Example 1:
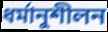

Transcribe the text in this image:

ধৰ্মানুশীলন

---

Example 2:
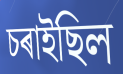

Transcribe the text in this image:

চৰাইছিল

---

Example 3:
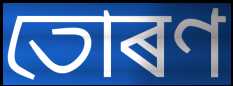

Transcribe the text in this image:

তোৰণ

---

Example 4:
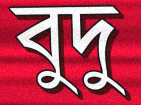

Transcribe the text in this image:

বুদু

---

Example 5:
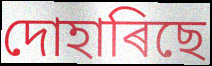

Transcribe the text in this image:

দোহাৰিছে